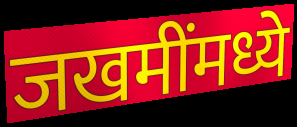
जखमींमध्ये